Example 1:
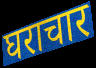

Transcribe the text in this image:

घराचार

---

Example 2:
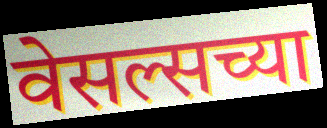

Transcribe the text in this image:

वेसल्सच्या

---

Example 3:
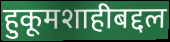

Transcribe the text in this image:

हुकूमशाहीबद्दल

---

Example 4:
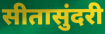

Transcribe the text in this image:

सीतासुंदरी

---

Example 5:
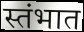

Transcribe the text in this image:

स्तंभात